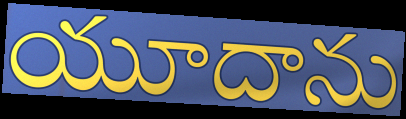
యూదాను